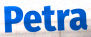
Petra